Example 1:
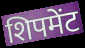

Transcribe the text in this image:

शिपमेंट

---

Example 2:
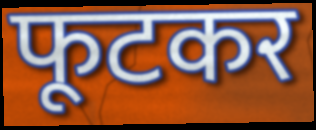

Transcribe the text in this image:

फूटकर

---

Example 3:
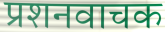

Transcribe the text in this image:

प्रशनवाचक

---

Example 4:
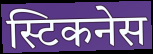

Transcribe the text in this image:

स्टिकनेस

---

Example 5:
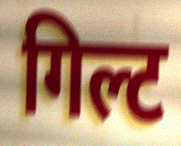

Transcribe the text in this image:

गिल्ट